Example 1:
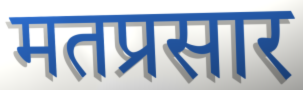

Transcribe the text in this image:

मतप्रसार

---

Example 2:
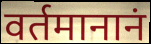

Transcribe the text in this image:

वर्तमानानं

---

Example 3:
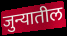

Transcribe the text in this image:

जुन्यातील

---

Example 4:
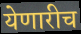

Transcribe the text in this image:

येणारीच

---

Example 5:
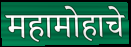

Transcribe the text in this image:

महामोहाचे